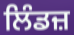
ਲਿੰਡਜ਼